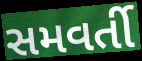
સમવર્તી